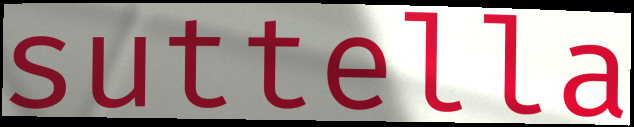
suttella